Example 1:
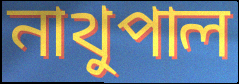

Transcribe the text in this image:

নাথুপাল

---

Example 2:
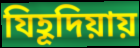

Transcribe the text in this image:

যিহূদিয়ায়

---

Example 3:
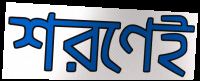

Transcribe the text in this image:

শরণেই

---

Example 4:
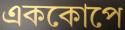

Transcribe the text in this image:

এককোপে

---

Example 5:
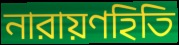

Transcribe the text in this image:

নারায়ণহিতি